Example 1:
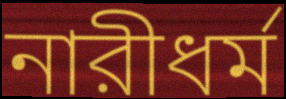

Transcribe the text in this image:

নারীধর্ম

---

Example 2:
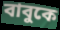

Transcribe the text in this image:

বাবুকে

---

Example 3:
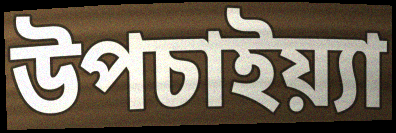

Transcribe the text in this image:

উপচাইয়্যা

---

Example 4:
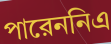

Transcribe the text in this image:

পারেননিএ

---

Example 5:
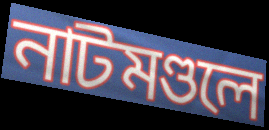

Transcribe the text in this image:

নাটমণ্ডলে